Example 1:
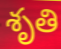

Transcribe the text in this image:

శృతి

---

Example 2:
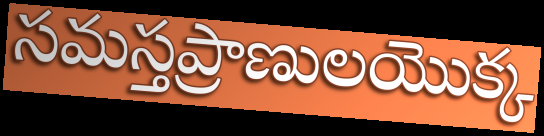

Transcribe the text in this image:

సమస్తప్రాణులయొక్క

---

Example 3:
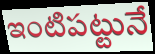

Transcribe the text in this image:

ఇంటిపట్టునే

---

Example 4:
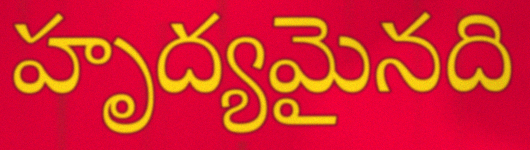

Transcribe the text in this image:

హృద్యమైనది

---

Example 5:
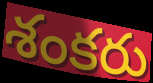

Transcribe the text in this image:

శంకరు